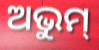
ଅଭୁମ୍